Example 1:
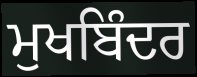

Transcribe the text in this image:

ਮੁਖਬਿੰਦਰ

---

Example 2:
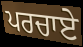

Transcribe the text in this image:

ਪਰਚਾਏ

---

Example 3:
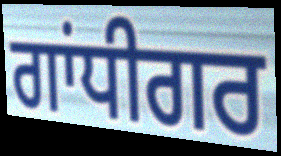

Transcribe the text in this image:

ਗਾਂਧੀਗਰ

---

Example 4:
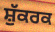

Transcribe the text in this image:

ਸ਼ੁੱਕਰਕ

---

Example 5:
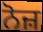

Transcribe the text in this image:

ਨੋਜ਼